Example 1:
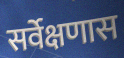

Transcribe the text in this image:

सर्वेक्षणास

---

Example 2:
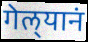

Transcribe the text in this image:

गेल्यानं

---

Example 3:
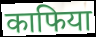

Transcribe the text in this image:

काफिया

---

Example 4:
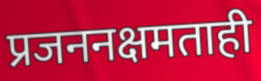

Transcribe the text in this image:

प्रजननक्षमताही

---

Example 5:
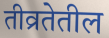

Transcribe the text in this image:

तीव्रतेतील